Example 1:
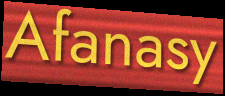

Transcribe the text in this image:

Afanasy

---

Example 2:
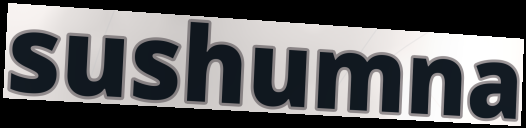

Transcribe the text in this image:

sushumna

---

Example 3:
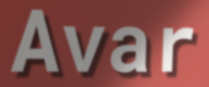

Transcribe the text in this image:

Avar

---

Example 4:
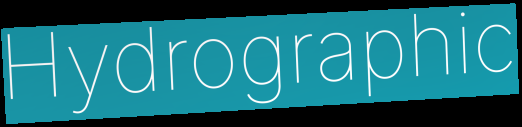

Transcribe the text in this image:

Hydrographic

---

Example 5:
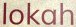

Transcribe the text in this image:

lokah